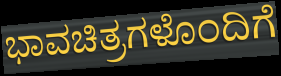
ಭಾವಚಿತ್ರಗಳೊಂದಿಗೆ